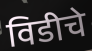
विडीचे